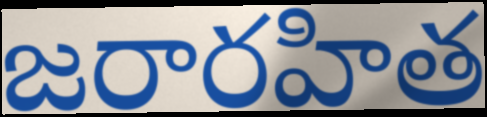
జరారహిత